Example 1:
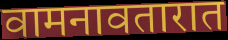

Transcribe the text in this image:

वामनावतारात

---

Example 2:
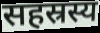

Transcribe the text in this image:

सहस्रस्य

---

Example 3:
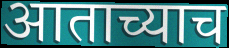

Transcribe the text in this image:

आताच्याच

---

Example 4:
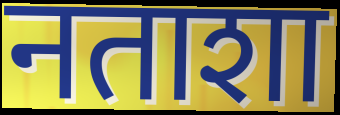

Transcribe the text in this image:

नताशा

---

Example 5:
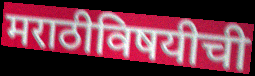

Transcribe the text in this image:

मराठीविषयीची